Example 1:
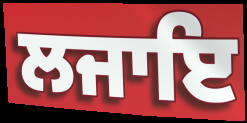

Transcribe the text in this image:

ਲਜਾਇ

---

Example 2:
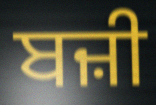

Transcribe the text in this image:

ਬਜ਼ੀ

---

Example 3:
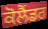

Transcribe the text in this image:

ਕੋਲੈਂਡਰ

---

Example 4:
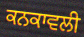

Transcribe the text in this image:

ਕਨਕਾਵਲੀ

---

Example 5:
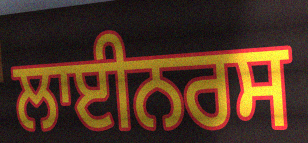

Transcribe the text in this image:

ਲਾਈਨਰਸ